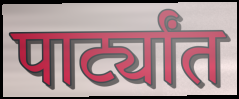
पार्ट्यांत